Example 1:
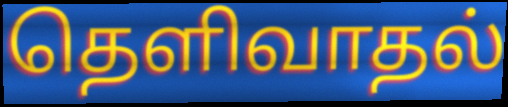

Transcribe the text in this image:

தெளிவாதல்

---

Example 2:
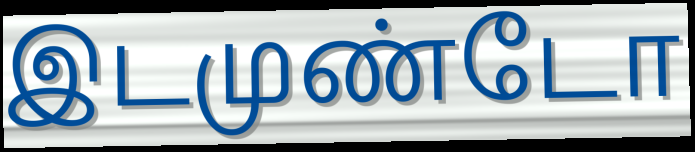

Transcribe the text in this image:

இடமுண்டோ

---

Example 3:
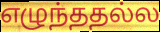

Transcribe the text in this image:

எழுந்ததல்ல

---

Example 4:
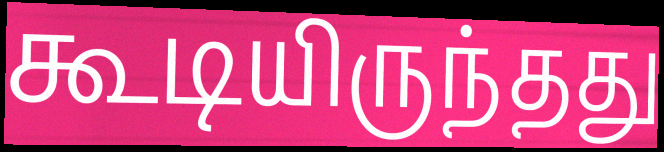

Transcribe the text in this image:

கூடியிருந்தது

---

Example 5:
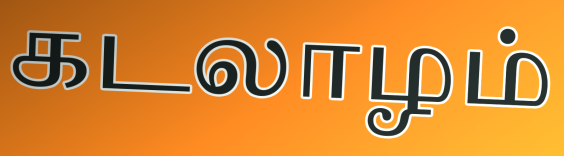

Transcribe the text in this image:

கடலாழம்